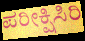
ಪರೀಕ್ಷಿಸಿರಿ